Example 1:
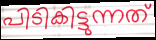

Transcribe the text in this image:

പിടികിട്ടുന്നത്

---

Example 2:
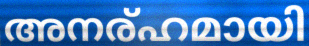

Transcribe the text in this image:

അനര്ഹമായി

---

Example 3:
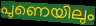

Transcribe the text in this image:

പുണെയിലും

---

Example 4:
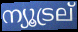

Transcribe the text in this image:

ന്യൂട്രല്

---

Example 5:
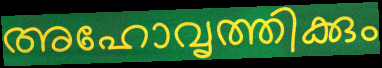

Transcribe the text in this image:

അഹോവൃത്തിക്കും